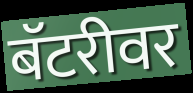
बॅटरीवर